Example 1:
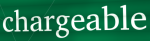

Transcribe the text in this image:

chargeable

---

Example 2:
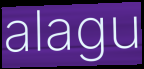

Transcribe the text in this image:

alagu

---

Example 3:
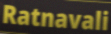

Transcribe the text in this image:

Ratnavali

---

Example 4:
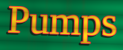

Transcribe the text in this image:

Pumps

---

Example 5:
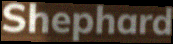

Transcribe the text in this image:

Shephard